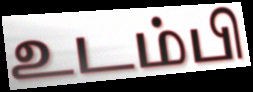
உடம்பி